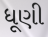
ધૂણી